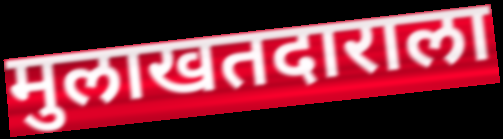
मुलाखतदाराला